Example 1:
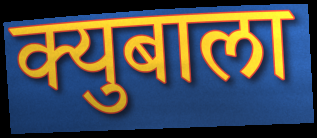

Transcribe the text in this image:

क्युबाला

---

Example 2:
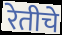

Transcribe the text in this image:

रेतीचे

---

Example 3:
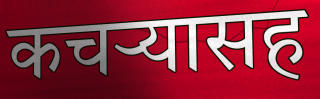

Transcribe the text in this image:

कचऱ्यासह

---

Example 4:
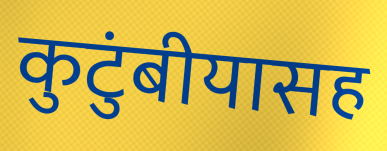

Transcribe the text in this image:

कुटुंबीयासह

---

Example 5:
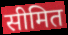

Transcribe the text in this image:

सीमित